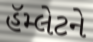
હૅમ્લેટને